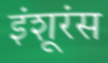
इंशूरंस